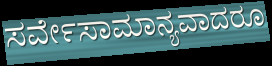
ಸರ್ವೇಸಾಮಾನ್ಯವಾದರೂ